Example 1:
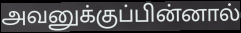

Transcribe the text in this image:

அவனுக்குப்பின்னால்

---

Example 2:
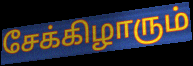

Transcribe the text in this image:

சேக்கிழாரும்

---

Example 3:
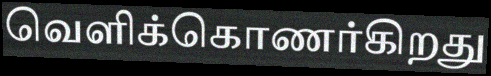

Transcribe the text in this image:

வெளிக்கொணர்கிறது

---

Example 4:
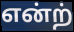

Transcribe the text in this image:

என்ற்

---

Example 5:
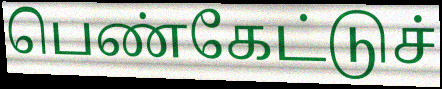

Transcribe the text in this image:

பெண்கேட்டுச்